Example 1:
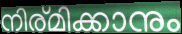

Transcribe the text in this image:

നിര്മിക്കാനും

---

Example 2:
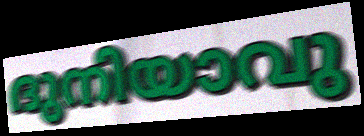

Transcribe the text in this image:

ദുനിയാവു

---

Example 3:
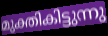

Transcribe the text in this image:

മുക്തികിട്ടുന്നു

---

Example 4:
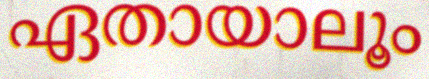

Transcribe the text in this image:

ഏതായാലൂം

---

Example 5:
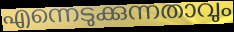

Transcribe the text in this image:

എന്നെടുക്കുന്നതാവും